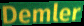
Demler